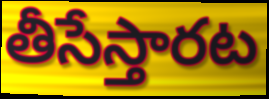
తీసేస్తారట